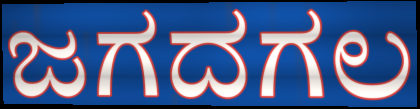
ಜಗದಗಲ